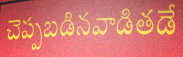
చెప్పబడినవాడితడే